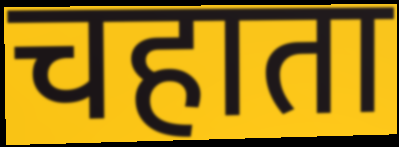
चहाता